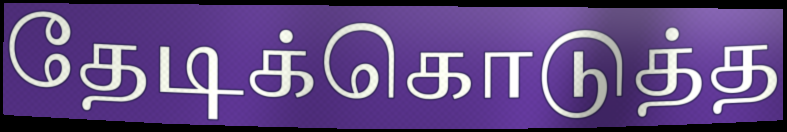
தேடிக்கொடுத்த